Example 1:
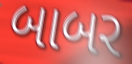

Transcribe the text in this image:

બાબર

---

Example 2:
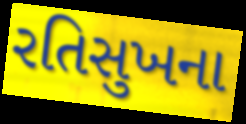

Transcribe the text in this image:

રતિસુખના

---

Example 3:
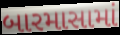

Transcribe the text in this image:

બારમાસામાં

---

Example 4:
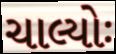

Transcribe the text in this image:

ચાલ્યોઃ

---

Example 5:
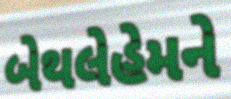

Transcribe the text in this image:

બેથલેહેમને